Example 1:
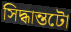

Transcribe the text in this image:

সিদ্ধান্তটো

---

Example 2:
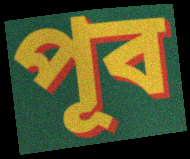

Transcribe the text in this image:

পূব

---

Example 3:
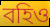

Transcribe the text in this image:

বহিও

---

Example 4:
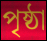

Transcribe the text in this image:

পৃষ্ঠা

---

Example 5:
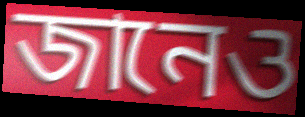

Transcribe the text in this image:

জানেও